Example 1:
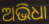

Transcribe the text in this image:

ଅଭିଧା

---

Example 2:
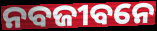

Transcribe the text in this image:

ନବଜୀବନେ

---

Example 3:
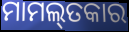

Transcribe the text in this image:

ମାମଲ୍‌ତକାର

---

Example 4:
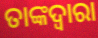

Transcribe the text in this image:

ତାଙ୍କଦ୍ୱାରା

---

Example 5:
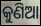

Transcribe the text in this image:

କୁଣିଆ